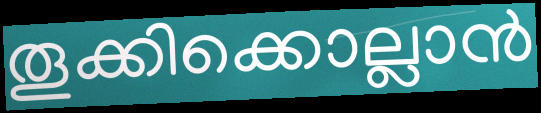
തൂക്കിക്കൊല്ലാൻ